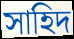
সাহিদ